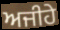
ਅਜੀਹੇ